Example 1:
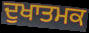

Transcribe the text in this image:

ਦੁਖਾਤਮਕ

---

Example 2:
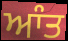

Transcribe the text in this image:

ਆੰਤ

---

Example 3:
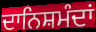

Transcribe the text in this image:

ਦਾਨਿਸ਼ਮੰਦਾਂ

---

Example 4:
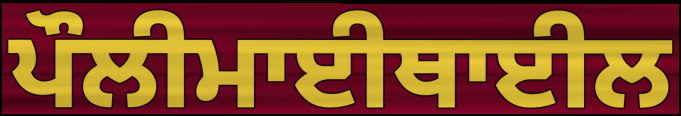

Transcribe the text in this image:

ਪੌਲੀਮਾਈਥਾਈਲ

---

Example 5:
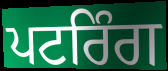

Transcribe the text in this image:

ਪਟਰਿੰਗ